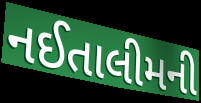
નઈતાલીમની